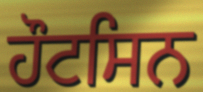
ਹੌਟਸਿਨ